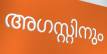
അഗസ്റ്റിനും